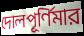
দোলপূর্ণিমার